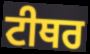
ਟੀਥਰ